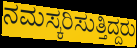
ನಮಸ್ಕರಿಸುತ್ತಿದ್ದರು